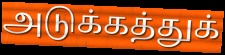
அடுக்கத்துக்